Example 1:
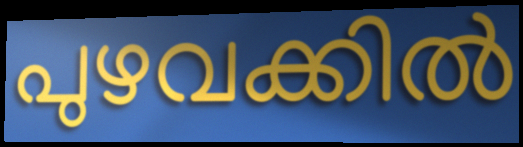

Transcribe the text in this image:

പുഴവക്കിൽ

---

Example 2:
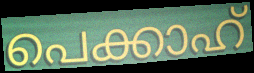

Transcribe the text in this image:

പെക്കാഹ്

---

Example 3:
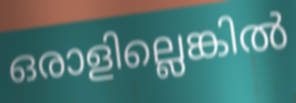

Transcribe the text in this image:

ഒരാളില്ലെങ്കിൽ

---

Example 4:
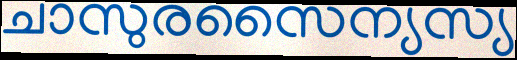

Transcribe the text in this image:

ചാസുരസൈന്യസ്യ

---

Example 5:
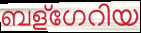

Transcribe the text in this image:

ബള്ഗേറിയ